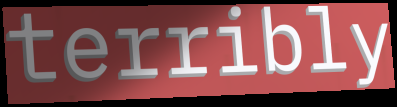
terribly